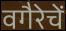
वगैरेचें